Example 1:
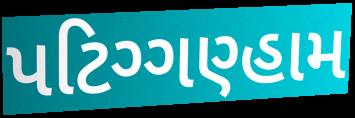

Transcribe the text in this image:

પટિગ્ગણ્હામ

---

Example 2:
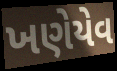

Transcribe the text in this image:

ખણેયેવ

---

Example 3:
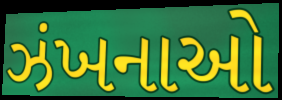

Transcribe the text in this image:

ઝંખનાઓ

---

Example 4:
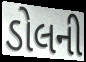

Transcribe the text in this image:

ડોલની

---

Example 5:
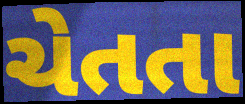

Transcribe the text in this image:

ચેતતા